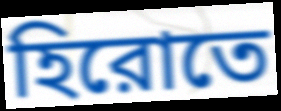
হিরোতে